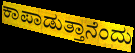
ಕಾಪಾಡುತ್ತಾನೆಂದು